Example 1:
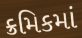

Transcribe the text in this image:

ક્રમિકમાં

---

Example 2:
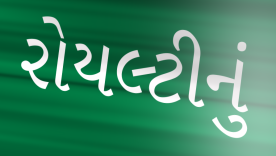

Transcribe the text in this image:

રોયલ્ટીનું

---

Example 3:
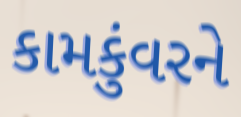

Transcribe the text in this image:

કામકુંવરને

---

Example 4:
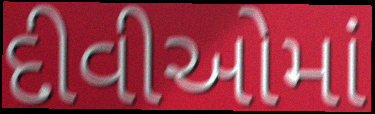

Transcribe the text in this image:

દીવીઓમાં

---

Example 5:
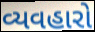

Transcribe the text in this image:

વ્યવહારો